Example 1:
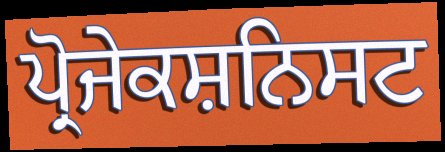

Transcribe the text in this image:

ਪ੍ਰੋਜੇਕਸ਼ਨਿਸਟ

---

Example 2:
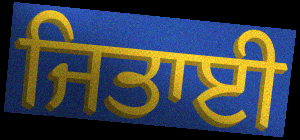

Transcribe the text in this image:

ਜਿਤਾਈ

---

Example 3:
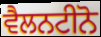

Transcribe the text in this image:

ਵੈਲਨਟੀਨੋ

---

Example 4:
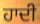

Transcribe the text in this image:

ਹਾਦੀ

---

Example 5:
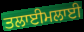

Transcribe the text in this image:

ਤਲਾਈਮਲਾਈ